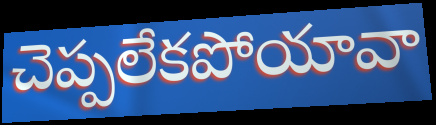
చెప్పలేకపోయావా